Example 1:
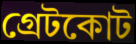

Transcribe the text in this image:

গ্রেটকোট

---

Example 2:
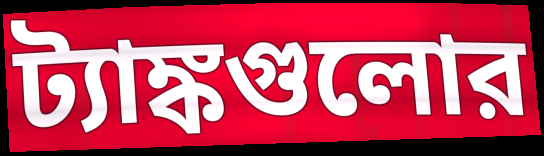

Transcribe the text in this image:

ট্যাঙ্কগুলোর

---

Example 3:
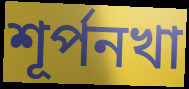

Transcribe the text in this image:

শূর্পনখা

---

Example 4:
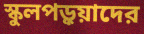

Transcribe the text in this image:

স্কুলপড়ুয়াদের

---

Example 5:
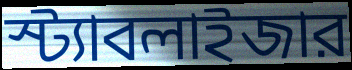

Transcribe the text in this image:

স্ট্যাবলাইজার